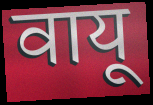
वायू